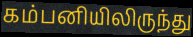
கம்பனியிலிருந்து